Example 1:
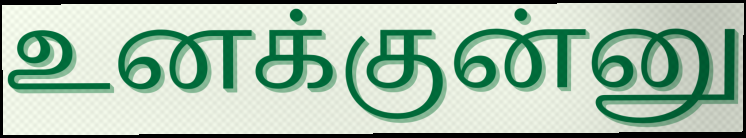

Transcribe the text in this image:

உனக்குன்னு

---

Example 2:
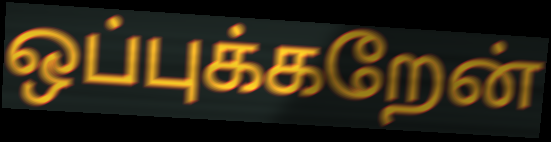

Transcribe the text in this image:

ஒப்புக்கறேன்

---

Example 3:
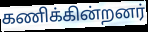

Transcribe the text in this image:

கணிக்கின்றனர்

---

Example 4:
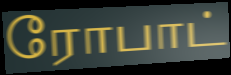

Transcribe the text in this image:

ரோபாட்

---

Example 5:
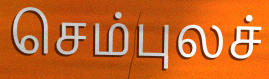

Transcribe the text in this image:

செம்புலச்